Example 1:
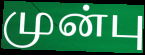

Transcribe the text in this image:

முன்பு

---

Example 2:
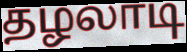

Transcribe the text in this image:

தழலாடி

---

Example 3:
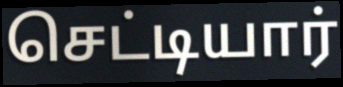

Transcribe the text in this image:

செட்டியார்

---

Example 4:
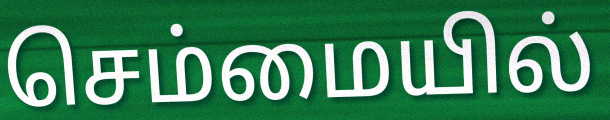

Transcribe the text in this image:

செம்மையில்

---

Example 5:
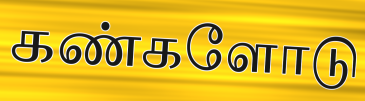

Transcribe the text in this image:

கண்களோடு